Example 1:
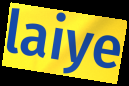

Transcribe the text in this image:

laiye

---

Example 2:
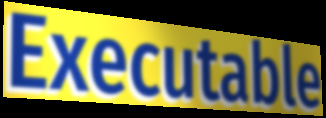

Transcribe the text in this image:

Executable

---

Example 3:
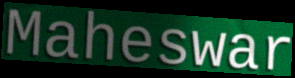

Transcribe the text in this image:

Maheswar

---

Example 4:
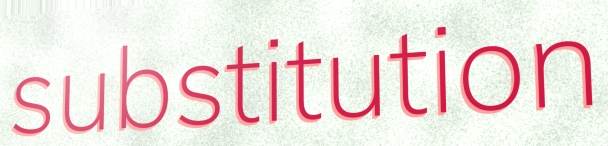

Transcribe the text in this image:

substitution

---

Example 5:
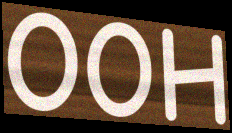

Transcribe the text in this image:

OOH